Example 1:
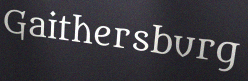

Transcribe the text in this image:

Gaithersburg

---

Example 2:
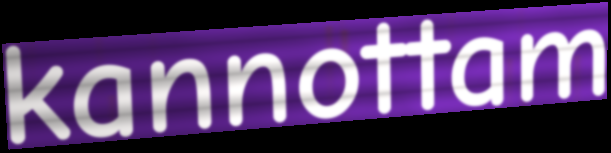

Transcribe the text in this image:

kannottam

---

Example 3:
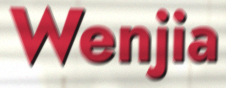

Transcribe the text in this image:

Wenjia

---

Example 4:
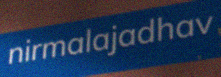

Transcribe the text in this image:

nirmalajadhav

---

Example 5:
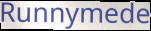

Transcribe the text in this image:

Runnymede